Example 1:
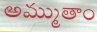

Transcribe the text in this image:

అమ్ముతాం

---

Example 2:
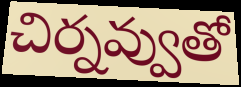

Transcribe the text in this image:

చిర్నవ్వుతో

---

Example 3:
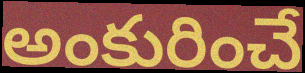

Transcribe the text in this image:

అంకురించే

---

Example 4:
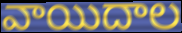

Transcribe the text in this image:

వాయిదాల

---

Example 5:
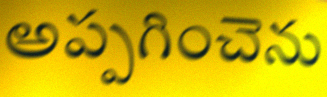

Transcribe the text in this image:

అప్పగించెను